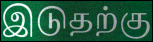
இடுதற்கு